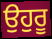
ਉਹੁਰੂ